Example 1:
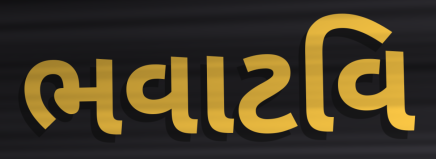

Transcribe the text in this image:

ભવાટવિ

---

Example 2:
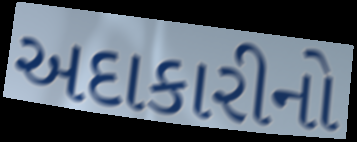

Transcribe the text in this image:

અદાકારીનો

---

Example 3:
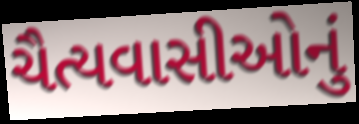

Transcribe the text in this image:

ચૈત્યવાસીઓનું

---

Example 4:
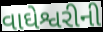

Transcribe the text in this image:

વાઘેશ્વરીની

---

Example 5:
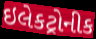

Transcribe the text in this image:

ઇલેકટ્રોનીક